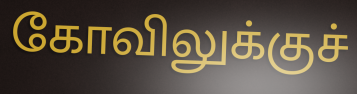
கோவிலுக்குச்